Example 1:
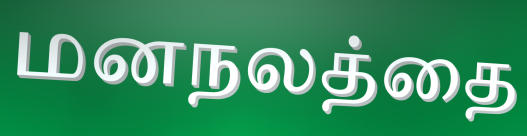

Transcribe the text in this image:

மனநலத்தை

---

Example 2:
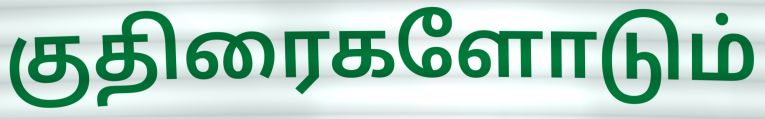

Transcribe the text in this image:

குதிரைகளோடும்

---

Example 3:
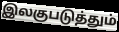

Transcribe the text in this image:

இலகுபடுத்தும்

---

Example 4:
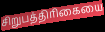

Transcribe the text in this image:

சிறுபத்திரிகையை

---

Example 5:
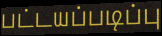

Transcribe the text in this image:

பட்டயப்படிப்பு